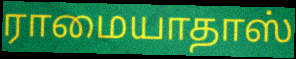
ராமையாதாஸ்